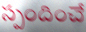
స్పందించే